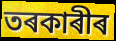
তৰকাৰীৰ